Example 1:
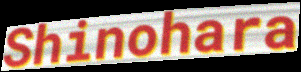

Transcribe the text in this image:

Shinohara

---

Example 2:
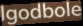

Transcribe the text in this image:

lgodbole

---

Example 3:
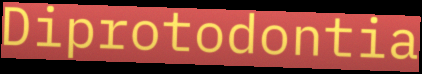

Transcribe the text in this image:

Diprotodontia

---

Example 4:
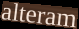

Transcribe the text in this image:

alteram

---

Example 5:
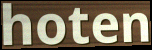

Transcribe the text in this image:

hoten